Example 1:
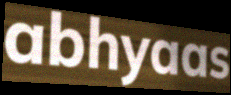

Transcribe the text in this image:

abhyaas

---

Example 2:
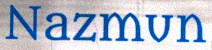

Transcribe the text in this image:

Nazmun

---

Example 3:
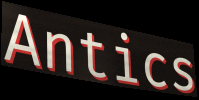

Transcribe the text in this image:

Antics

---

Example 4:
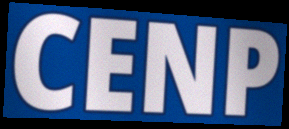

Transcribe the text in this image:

CENP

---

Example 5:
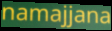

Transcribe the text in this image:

namajjana